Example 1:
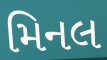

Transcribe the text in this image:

મિનલ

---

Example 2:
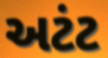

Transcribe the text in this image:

અટંટ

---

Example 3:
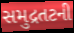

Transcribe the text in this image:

સમુદ્રતટની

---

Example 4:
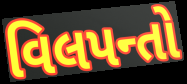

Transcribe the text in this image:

વિલપન્તો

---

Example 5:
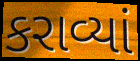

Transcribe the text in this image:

કરાવ્યાં